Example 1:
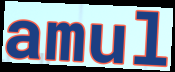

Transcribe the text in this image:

amul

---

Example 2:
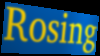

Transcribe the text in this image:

Rosing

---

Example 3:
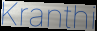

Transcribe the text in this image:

Kranthi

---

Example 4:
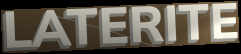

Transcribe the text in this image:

LATERITE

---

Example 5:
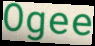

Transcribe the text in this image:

Ogee